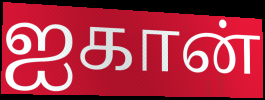
ஐகான்